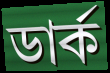
ডার্ক